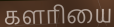
களரியை